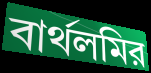
বার্থলমির